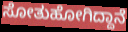
ಸೋತುಹೋಗಿದ್ದಾನೆ